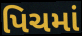
પિચમાં